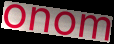
onom